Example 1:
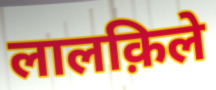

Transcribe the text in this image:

लालक़िले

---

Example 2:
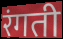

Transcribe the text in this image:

रंगती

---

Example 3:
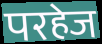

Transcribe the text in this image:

परहेज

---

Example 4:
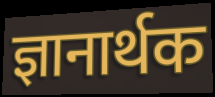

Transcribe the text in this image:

ज्ञानार्थक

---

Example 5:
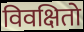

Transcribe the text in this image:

विवक्षितो